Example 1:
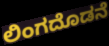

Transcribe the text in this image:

ಲಿಂಗದೊಡನೆ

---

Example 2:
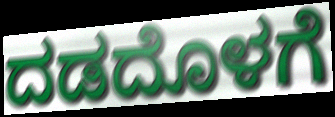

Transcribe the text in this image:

ದಡದೊಳಗೆ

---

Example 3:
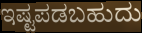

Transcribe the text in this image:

ಇಷ್ಟಪಡಬಹುದು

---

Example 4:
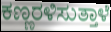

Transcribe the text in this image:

ಕಣ್ಣರಳಿಸುತ್ತಾಳೆ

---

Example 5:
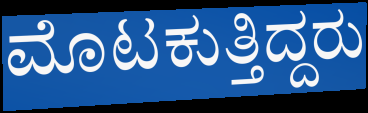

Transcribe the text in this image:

ಮೊಟಕುತ್ತಿದ್ದರು